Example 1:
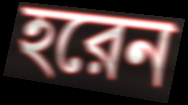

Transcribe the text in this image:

হরেন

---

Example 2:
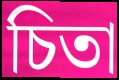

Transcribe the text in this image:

চিতা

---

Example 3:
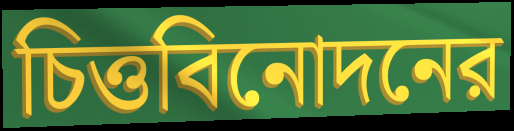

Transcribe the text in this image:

চিত্তবিনোদনের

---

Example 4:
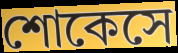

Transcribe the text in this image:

শোকেসে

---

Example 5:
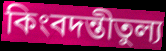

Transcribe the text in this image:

কিংবদন্তীতুল্য